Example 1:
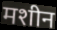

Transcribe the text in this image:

मशीन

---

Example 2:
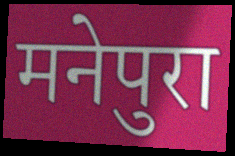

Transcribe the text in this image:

मनेपुरा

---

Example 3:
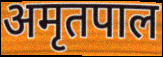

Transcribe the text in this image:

अमृतपाल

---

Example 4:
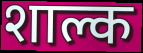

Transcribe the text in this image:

शाल्क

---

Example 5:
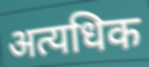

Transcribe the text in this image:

अत्यधिक